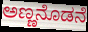
ಅಣ್ಣನೊಡನೆ